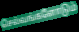
செல்வங்களோடும்